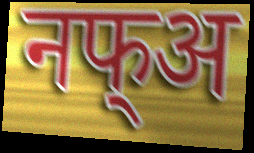
नफ्अ